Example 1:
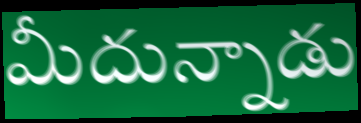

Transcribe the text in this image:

మీదున్నాడు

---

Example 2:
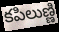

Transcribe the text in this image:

కపిలుణ్ణి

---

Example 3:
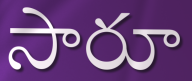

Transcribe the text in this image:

సారూ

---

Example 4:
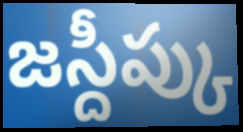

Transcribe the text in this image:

జస్దీప్కు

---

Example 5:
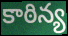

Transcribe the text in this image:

కాఠిన్య